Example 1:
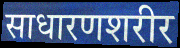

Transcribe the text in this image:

साधारणशरीर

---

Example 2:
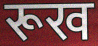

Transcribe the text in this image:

रूख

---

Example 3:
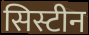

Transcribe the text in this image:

सिस्टीन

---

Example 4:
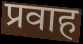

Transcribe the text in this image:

प्रवाह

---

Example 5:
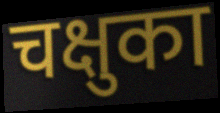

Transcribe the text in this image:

चक्षुका